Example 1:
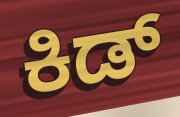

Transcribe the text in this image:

ಕಿಡ್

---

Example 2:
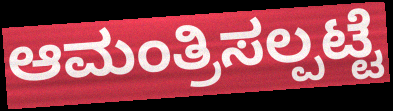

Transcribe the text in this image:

ಆಮಂತ್ರಿಸಲ್ಪಟ್ಟೆ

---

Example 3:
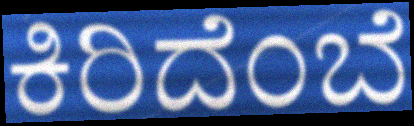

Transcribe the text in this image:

ಕಿರಿದೆಂಬೆ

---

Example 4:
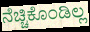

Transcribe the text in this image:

ನೆಚ್ಚಿಕೊಂಡಿಲ್ಲ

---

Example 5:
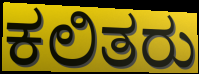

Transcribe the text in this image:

ಕಲಿತರು